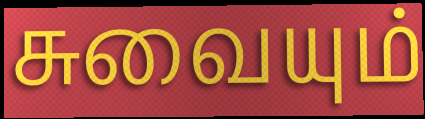
சுவையும்